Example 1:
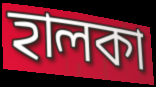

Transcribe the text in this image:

হালকা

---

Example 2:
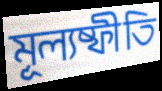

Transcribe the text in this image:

মূল্যষ্ফীতি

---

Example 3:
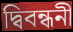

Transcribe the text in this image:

দ্বিবন্ধনী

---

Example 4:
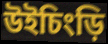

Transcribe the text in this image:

উইচিংড়ি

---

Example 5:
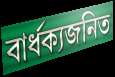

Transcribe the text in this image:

বার্ধক্যজনিত